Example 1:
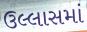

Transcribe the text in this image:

ઉલ્લાસમાં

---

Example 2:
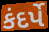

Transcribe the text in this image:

કંદર્પે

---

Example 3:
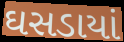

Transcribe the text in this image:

ઘસડાયાં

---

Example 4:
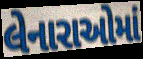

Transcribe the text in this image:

લેનારાઓમાં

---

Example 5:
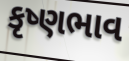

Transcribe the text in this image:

કૃષ્ણભાવ